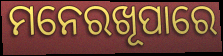
ମନେରଖୂପାରେ